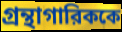
গ্রন্থাগারিককে